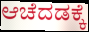
ಆಚೆದಡಕ್ಕೆ